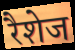
रैशेज